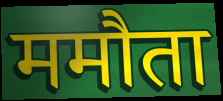
ममौता